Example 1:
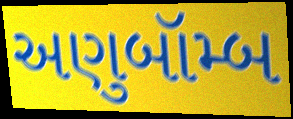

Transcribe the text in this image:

અણુબૉમ્બ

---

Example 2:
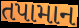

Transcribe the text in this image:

તપામાન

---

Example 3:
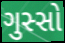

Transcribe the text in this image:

ગુસ્સો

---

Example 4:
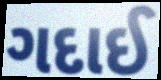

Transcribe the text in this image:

ગદાઈ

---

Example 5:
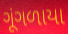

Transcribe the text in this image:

ગૂંગળાયા